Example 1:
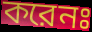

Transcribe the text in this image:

করেনঃ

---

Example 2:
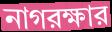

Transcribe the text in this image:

নাগরক্ষার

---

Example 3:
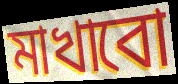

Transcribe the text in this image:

মাখাবো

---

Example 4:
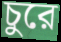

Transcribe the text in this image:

চুরে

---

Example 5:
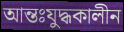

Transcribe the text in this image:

আন্তঃযুদ্ধকালীন